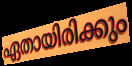
ഏതായിരിക്കും